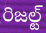
రిజల్ట్